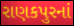
રાણકપુરનાં